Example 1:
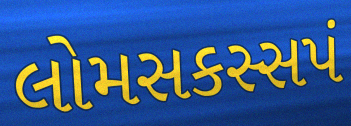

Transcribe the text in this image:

લોમસકસ્સપં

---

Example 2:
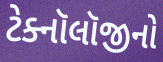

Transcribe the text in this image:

ટેક્નૉલૉજીનો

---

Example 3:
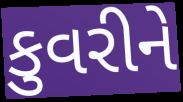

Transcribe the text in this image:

કુવરીને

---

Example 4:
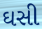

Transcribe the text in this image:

ઘસી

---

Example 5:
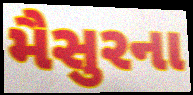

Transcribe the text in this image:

મૈસુરના